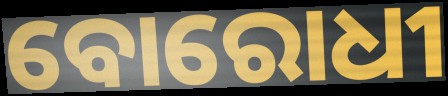
ବୋରୋଧୀ